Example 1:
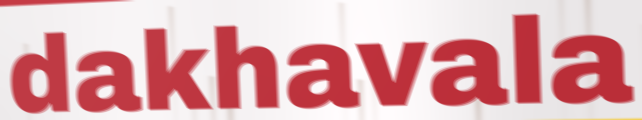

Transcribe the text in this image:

dakhavala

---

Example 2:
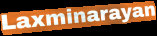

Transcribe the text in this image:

Laxminarayan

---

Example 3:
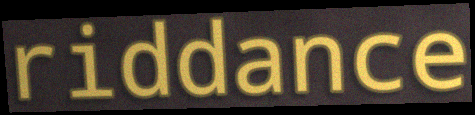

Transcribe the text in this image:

riddance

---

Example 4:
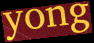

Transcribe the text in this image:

yong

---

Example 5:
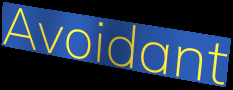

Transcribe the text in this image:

Avoidant